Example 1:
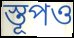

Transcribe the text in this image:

স্তূপও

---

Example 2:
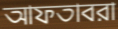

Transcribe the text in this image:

আফতাবরা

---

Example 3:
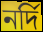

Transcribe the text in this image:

নর্দি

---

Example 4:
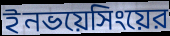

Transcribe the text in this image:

ইনভয়েসিংয়ের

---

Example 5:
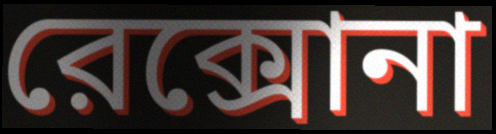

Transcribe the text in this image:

রেক্সোনা